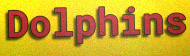
Dolphins